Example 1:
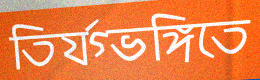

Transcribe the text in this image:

তির্যগ্ভঙ্গিতে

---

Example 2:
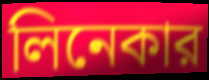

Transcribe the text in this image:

লিনেকার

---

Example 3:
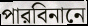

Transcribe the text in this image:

পারবিনানে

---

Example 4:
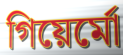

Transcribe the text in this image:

গিয়ের্মো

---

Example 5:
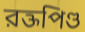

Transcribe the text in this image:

রক্তপিণ্ড